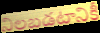
నిలబడటానికీ